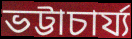
ভট্টাচাৰ্য্য